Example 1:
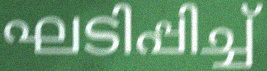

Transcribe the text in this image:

ഘടിപ്പിച്ച്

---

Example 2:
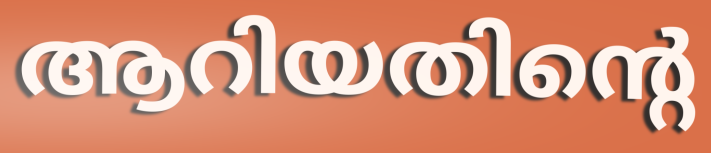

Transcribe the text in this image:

ആറിയതിന്റെ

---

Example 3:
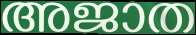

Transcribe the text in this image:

അജാത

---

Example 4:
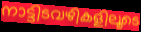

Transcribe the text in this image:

നാട്ടിടവഴികളിലൂടെ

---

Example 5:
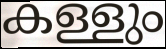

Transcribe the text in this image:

കള്ളും